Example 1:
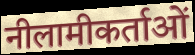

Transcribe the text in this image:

नीलामीकर्ताओं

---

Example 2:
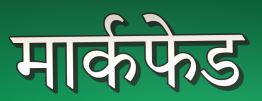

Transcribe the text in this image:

मार्कफेड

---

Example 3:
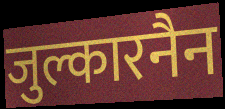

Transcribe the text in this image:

जुल्कारनैन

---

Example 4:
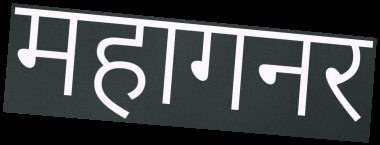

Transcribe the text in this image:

महागनर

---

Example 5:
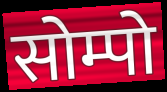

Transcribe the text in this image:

सोम्पो